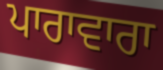
ਪਾਰਾਵਾਰਾ